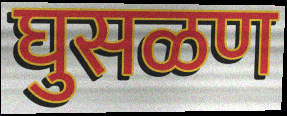
घुसळण